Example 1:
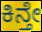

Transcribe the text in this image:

ಕಿನ್ತೇ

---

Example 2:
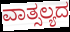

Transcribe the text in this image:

ವಾತ್ಸಲ್ಯದ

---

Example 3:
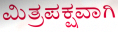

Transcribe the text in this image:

ಮಿತ್ರಪಕ್ಷವಾಗಿ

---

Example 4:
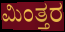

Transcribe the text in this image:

ಮಿಂತ್ತರ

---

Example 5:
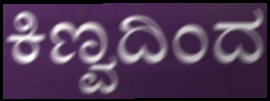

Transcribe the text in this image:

ಕಿಣ್ವದಿಂದ